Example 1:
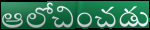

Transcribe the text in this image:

ఆలోచించడు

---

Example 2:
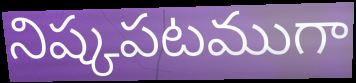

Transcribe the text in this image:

నిష్కపటముగా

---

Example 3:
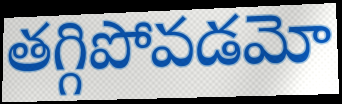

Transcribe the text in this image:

తగ్గిపోవడమో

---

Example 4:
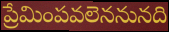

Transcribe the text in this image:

ప్రేమింపవలెననునది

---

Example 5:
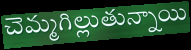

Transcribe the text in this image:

చెమ్మగిల్లుతున్నాయి